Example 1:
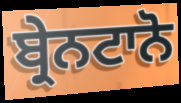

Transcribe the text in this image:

ਬ੍ਰੇਨਟਾਨੋ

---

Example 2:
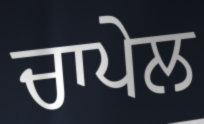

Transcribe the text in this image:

ਚਾਪੇਲ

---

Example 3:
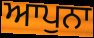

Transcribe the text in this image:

ਆਪੁਨਾ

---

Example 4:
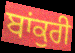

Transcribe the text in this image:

ਬਾਂਕੁਰੀ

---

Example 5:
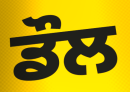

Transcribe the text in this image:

ਡੌਲ